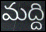
మద్ది